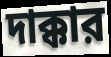
দাক্কার